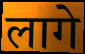
लागे